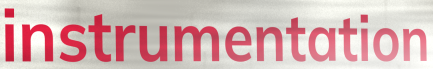
instrumentation